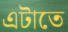
এটাতে